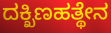
ದಕ್ಖಿಣಹತ್ಥೇನ